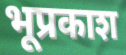
भूप्रकाश